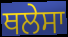
ਥਲੇਸਾ